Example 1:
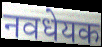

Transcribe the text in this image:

नवधेयक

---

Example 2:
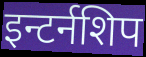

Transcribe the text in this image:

इन्टर्नशिप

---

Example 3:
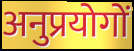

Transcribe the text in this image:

अनुप्रयोगों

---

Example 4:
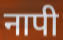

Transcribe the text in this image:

नापी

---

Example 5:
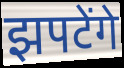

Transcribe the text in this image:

झपटेंगे